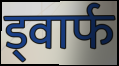
ड्वार्फ